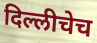
दिल्लीचेच